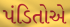
પંડિતોએ